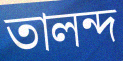
তালন্দ